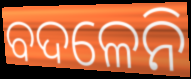
ବଦଳେନି